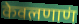
केवलणाणं